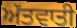
ਅੱਤਵਾਤੀ